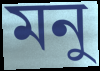
মনু